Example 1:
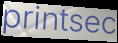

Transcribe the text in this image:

printsec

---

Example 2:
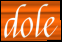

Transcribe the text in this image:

dole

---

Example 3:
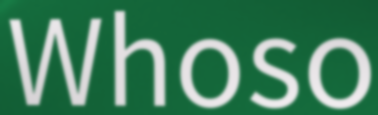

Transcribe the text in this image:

Whoso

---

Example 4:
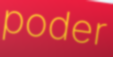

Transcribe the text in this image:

poder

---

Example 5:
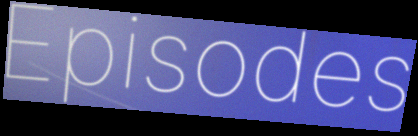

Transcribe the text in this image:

Episodes